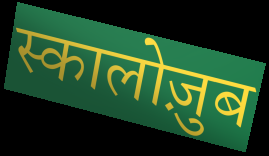
स्कालोज़ुब